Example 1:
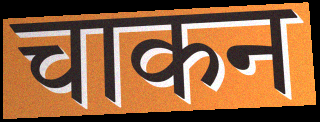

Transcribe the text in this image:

चाकन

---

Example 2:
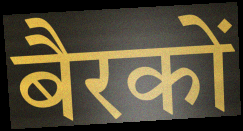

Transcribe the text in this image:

बैरकों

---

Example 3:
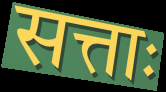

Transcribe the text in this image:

सत्ताः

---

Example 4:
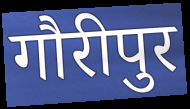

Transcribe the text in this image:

गौरीपुर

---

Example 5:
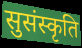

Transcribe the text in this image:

सुसंस्कृति